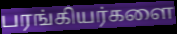
பரங்கியர்களை